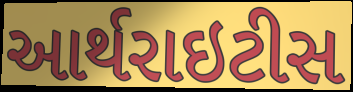
આર્થરાઇટીસ